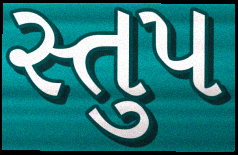
સ્તુપ